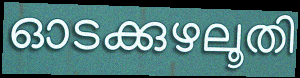
ഓടക്കുഴലൂതി